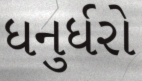
ધનુર્ધરો